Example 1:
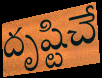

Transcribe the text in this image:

దృష్టిచే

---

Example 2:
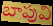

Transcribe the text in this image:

బాపువి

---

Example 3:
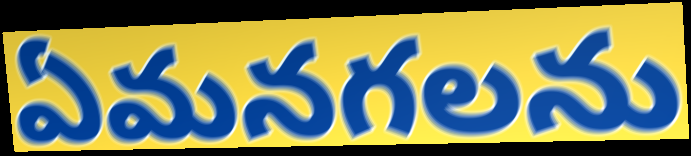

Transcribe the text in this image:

ఏమనగలను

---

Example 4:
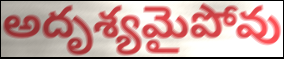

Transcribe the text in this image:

అదృశ్యమైపోవు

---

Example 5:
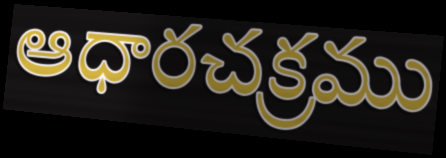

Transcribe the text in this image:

ఆధారచక్రము